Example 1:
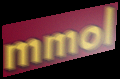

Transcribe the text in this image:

mmol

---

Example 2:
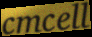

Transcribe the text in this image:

cmcell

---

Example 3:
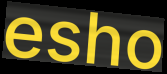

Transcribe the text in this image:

esho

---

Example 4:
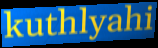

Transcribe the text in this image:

kuthlyahi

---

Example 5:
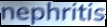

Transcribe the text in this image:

nephritis